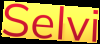
Selvi